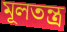
মূলতন্ত্র